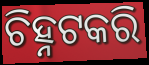
ଚିହ୍ନଟକରି